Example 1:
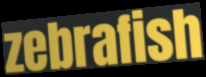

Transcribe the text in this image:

zebrafish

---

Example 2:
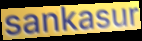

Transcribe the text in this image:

sankasur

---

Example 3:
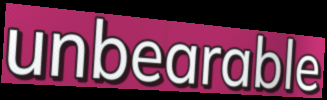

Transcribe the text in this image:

unbearable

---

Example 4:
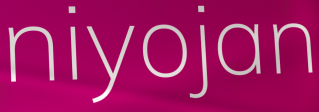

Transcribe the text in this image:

niyojan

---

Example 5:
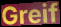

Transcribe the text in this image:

Greif